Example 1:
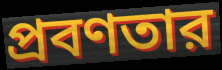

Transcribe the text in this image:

প্রবণতার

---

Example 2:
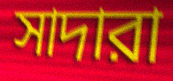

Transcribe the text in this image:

সাদারা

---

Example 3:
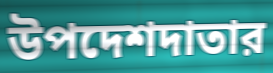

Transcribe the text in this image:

উপদেশদাতার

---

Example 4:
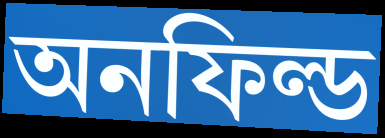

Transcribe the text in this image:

অনফিল্ড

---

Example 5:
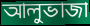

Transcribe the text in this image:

আলুভাজা